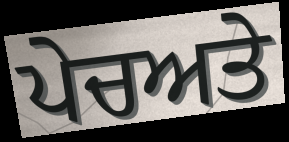
ਪੇਚਅਤੇ